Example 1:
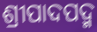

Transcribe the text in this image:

ଶ୍ରୀପାଦପଦ୍ମ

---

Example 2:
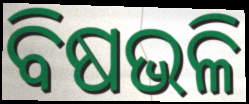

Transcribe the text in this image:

ବିଷଭଳି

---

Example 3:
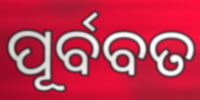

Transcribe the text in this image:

ପୂର୍ବବତ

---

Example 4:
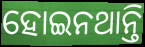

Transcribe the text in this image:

ହୋଇନଥାନ୍ତି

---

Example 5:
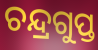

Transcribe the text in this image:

ଚନ୍ଦ୍ରଗୁପ୍ତ